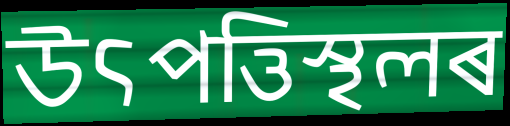
উৎপত্তিস্থলৰ